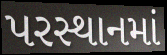
પરસ્થાનમાં